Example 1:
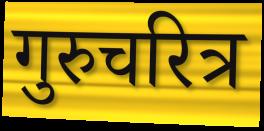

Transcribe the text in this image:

गुरुचरित्र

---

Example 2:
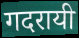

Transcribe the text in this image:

गदरायी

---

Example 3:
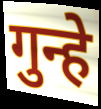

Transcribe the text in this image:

गुन्हे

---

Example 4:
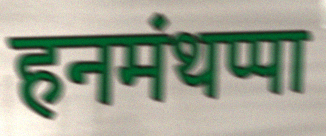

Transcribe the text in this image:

हनमंथप्पा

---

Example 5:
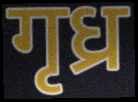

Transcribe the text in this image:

गृध्र